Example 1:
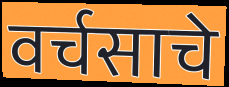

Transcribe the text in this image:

वर्चसाचे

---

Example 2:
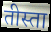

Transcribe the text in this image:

तीस्ता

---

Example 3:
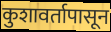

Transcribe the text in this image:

कुशावर्तापासून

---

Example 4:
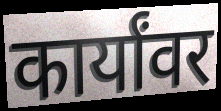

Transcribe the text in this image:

कार्यांवर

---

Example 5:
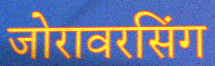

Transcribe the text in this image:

जोरावरसिंग